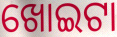
ଖୋଇଟା